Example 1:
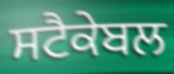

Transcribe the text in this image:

ਸਟੈਕੇਬਲ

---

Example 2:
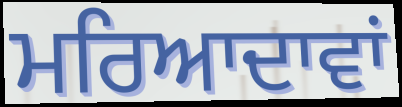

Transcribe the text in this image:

ਮਰਿਆਦਾਵਾਂ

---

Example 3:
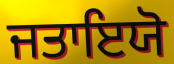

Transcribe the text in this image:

ਜਤਾਇਯੋ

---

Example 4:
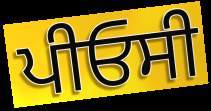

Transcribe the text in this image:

ਪੀਓਸੀ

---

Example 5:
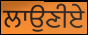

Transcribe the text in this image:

ਲਾਉਣੀਏ